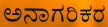
ಅನಾಗರಿಕರ